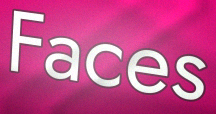
Faces